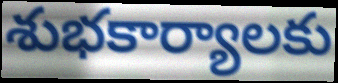
శుభకార్యాలకు